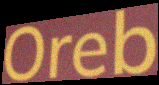
Oreb